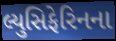
લ્યુસિફેરિનના